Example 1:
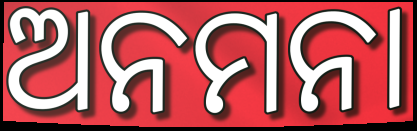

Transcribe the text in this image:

ଅନମନା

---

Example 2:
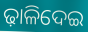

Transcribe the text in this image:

ଢ଼ାଳିଦେଇ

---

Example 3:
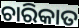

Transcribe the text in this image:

ଚାରିକାତ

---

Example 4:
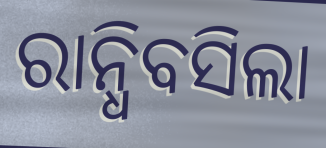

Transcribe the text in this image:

ରାନ୍ଧିବସିଲା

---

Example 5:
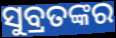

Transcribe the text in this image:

ସୁବ୍ରତଙ୍କର